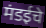
मंडईचे